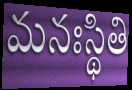
మనఃస్థితి